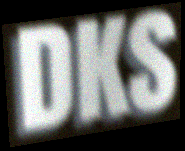
DKS